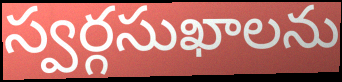
స్వర్గసుఖాలను